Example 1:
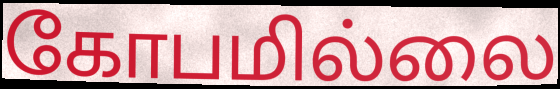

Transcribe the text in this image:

கோபமில்லை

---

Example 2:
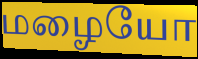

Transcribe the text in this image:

மழையோ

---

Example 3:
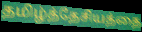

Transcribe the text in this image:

தமிழ்த்தேசியத்தை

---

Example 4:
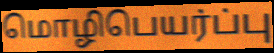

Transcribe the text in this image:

மொழிபெயர்ப்பு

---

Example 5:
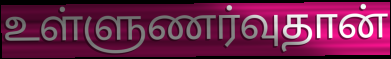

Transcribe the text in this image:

உள்ளுணர்வுதான்